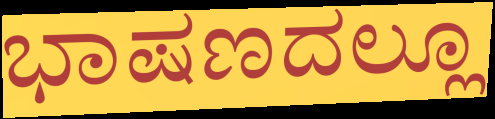
ಭಾಷಣದಲ್ಲೂ